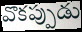
వొకప్పుడు